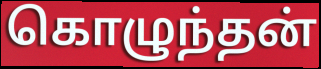
கொழுந்தன்